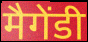
मैगेंडी